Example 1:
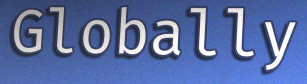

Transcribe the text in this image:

Globally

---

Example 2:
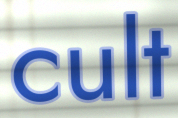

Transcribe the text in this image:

cult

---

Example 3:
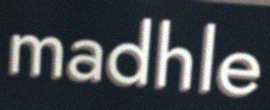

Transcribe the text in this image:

madhle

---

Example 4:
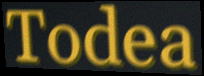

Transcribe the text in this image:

Todea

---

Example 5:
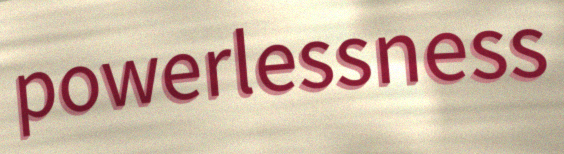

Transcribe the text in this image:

powerlessness